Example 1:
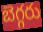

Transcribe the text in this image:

బెగ్గరు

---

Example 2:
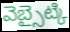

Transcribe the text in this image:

వెబ్సైట్కి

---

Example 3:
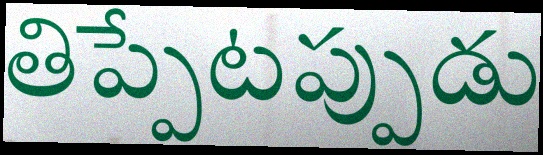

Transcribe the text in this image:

తిప్పేటప్పుడు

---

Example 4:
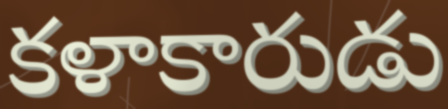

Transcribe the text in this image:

కళాకారుడు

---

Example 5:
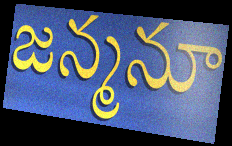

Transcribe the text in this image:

జన్మనూ